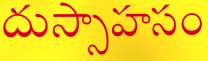
దుస్సాహసం